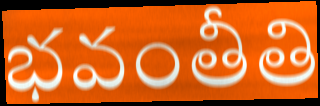
భవంతీతి